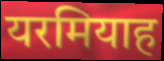
यरमियाह